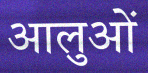
आलुओं